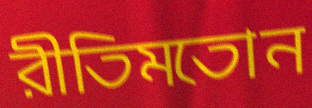
রীতিমতোন